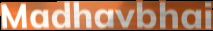
Madhavbhai